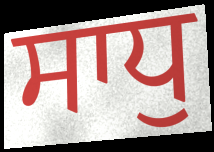
ਸਾਧੁ